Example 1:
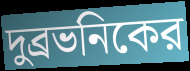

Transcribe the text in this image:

দুব্রভনিকের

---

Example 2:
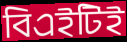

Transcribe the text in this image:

বিএইটিই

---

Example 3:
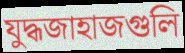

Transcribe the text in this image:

যুদ্ধজাহাজগুলি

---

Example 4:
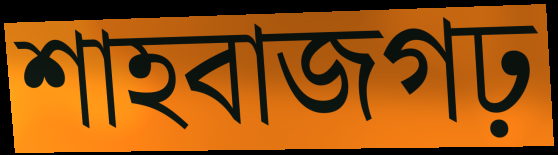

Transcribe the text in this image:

শাহবাজগঢ়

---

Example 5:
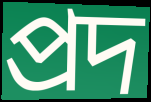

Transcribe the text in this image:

প্রদ